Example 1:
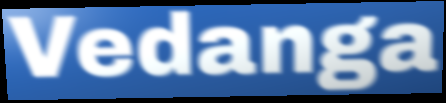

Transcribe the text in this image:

Vedanga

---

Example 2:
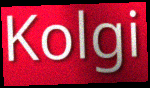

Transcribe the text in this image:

Kolgi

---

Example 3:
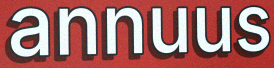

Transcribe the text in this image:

annuus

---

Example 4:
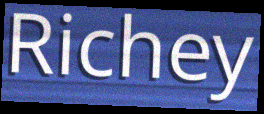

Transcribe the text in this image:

Richey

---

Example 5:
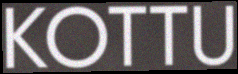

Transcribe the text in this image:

KOTTU